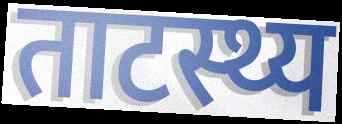
ताटस्थ्य